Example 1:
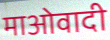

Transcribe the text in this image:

माओवादी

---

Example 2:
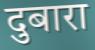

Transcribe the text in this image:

दुबारा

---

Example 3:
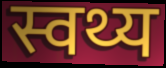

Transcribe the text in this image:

स्वथ्य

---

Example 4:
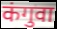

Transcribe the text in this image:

कंगुवा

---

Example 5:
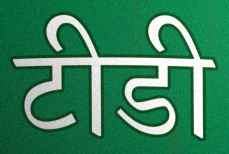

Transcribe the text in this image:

टीडी